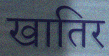
खातिर